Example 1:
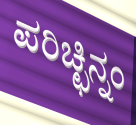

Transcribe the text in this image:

ಪರಿಚ್ಛಿನ್ನಂ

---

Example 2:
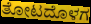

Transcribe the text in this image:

ತೋಟದೊಳಗ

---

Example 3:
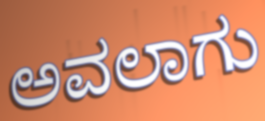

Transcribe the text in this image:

ಅವಲಾಗು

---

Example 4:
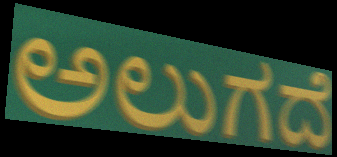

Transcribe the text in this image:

ಅಲುಗದೆ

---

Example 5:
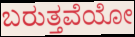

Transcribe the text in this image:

ಬರುತ್ತವೆಯೋ